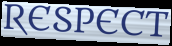
RESPECT